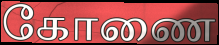
கோணை